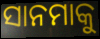
ସାନମାକୁ